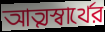
আত্মস্বার্থের